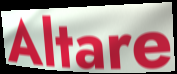
Altare